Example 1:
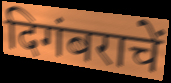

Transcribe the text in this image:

दिगंबराचें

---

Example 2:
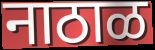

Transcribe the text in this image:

नाठाळ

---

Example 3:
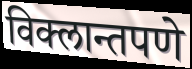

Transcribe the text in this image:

विक्लान्तपणे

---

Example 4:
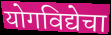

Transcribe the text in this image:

योगविद्येचा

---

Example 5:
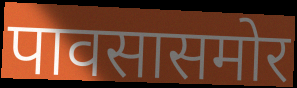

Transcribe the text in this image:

पावसासमोर